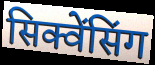
सिक्वेंसिंग